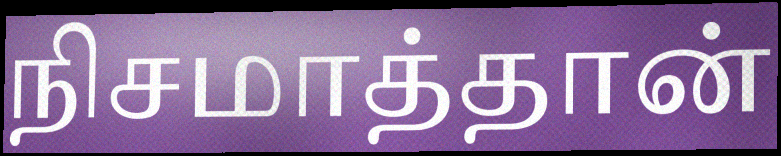
நிசமாத்தான்